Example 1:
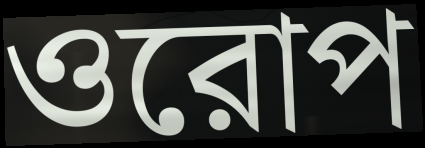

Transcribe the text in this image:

ওরোপ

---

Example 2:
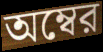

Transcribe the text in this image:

অম্বের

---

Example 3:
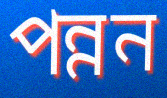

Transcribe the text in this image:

পন্নন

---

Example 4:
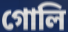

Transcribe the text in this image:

গোলি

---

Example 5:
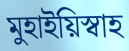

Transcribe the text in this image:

মুহাইয়িস্বাহ